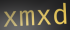
xmxd